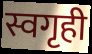
स्वगृही